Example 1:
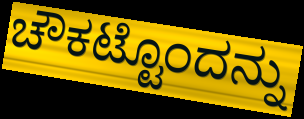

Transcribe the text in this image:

ಚೌಕಟ್ಟೊಂದನ್ನು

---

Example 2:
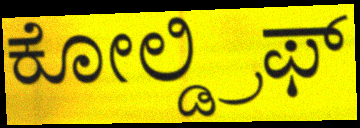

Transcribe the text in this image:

ಕೋಲ್ಡ್ರಿಫ್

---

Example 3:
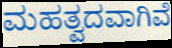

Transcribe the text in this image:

ಮಹತ್ವದವಾಗಿವೆ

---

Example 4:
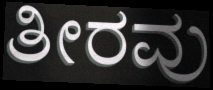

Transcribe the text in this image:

ತೀರವು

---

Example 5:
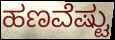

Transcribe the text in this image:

ಹಣವೆಷ್ಟು